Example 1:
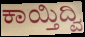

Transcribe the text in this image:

ಕಾಯ್ತಿದ್ವಿ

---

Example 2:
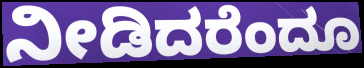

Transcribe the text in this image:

ನೀಡಿದರೆಂದೂ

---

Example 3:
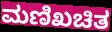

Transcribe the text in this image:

ಮಣಿಖಚಿತ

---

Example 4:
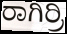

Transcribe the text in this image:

ರಾಗಿರ್ರಿ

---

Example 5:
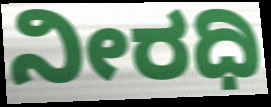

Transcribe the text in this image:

ನೀರಧಿ